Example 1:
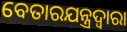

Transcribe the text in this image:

ବେତାରଯନ୍ତ୍ରଦ୍ୱାରା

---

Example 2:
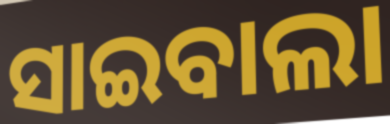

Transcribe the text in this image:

ସାଇବାଲା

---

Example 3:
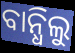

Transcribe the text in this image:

ବାନ୍ଧିଲୁ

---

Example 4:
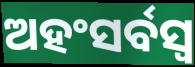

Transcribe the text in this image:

ଅହଂସର୍ବସ୍ୱ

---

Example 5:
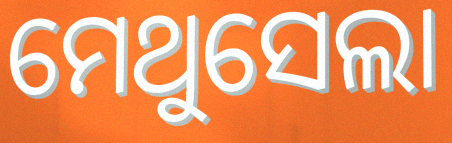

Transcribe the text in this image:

ମେଥୁସେଲା